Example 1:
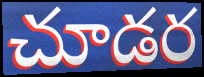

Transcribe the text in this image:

చూడర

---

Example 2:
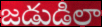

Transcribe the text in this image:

జడుడిలా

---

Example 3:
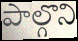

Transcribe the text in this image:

పాల్గొని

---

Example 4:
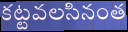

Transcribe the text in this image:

కట్టవలసినంత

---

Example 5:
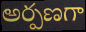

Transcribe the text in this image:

అర్పణగా